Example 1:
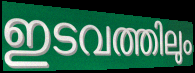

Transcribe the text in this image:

ഇടവത്തിലും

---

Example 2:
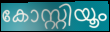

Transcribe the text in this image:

കോസ്റ്റിയൂം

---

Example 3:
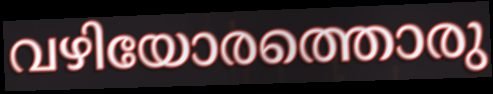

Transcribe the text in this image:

വഴിയോരത്തൊരു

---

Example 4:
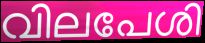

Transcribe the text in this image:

വിലപേശി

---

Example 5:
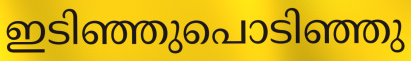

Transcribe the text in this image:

ഇടിഞ്ഞുപൊടിഞ്ഞു